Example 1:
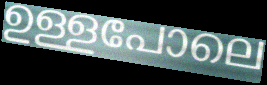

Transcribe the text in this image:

ഉള്ളപോലെ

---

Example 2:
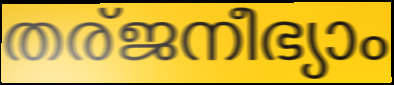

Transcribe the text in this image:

തര്ജനീഭ്യാം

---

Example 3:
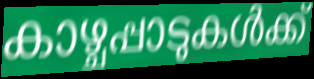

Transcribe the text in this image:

കാഴ്ചപ്പാടുകൾക്ക്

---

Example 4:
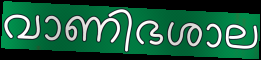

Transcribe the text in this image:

വാണിഭശാല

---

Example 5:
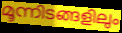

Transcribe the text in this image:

മൂന്നിടങ്ങളിലും